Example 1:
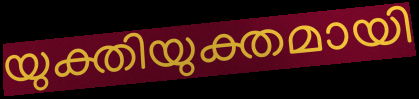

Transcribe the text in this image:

യുക്തിയുക്തമായി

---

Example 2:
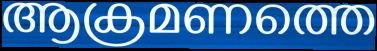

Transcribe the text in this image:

ആക്രമണത്തെ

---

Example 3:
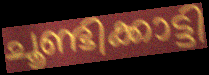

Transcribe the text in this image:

ചൂണ്ടിക്കാട്ടി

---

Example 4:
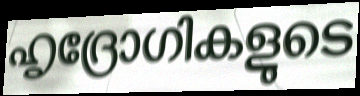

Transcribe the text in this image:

ഹൃദ്രോഗികളുടെ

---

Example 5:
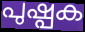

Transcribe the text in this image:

പുഷ്പക